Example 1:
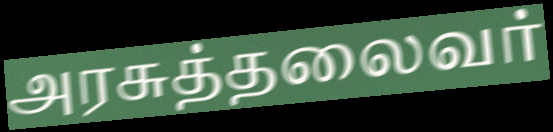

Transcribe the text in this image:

அரசுத்தலைவர்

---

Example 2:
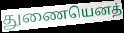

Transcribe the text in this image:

துணையெனத்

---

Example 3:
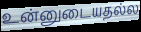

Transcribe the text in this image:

உன்னுடையதல்ல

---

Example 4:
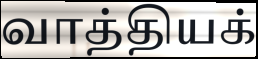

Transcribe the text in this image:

வாத்தியக்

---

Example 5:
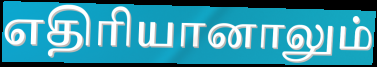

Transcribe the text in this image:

எதிரியானாலும்